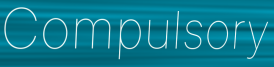
Compulsory